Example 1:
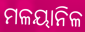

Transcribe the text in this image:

ମଳୟାନିଳ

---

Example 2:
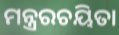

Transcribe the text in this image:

ମନ୍ତ୍ରରଚୟିତା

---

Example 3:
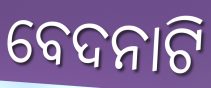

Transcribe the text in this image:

ବେଦନାଟି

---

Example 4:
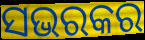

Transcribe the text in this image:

ସଭରକର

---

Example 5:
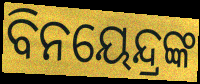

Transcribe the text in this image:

ବିନୟେନ୍ଦ୍ରଙ୍କ